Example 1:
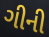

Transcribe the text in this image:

ગીની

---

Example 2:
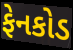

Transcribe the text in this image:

ફેનકોડ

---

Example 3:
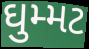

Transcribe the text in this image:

ઘુમ્મટ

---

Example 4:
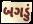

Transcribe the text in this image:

બગડું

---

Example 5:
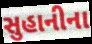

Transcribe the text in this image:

સુહાનીના